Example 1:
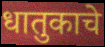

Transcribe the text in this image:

धातुकाचे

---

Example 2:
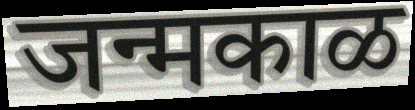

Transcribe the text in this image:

जन्मकाळ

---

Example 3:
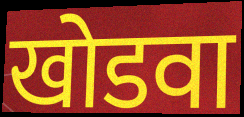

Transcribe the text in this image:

खोडवा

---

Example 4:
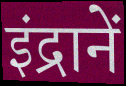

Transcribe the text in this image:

इंद्रानें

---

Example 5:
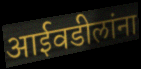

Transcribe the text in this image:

आईवडीलांना